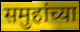
समुहांच्या